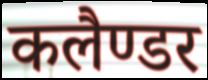
कलैण्डर